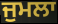
ਜੁਮਲਾ